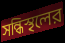
সন্ধিস্থলের